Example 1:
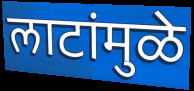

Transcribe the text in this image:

लाटांमुळे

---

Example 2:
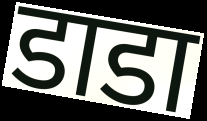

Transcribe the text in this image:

डाडा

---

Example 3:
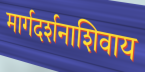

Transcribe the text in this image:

मार्गदर्शनाशिवाय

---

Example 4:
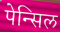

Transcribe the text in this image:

पेन्सिल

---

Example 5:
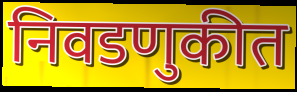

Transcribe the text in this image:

निवडणुकीत